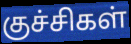
குச்சிகள்